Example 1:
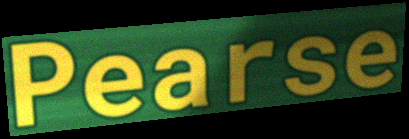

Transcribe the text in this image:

Pearse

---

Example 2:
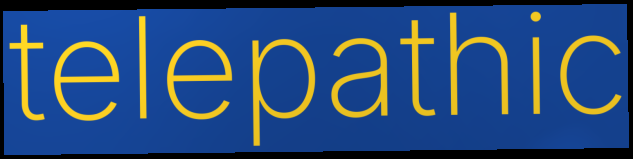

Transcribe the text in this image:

telepathic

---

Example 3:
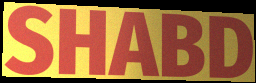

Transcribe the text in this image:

SHABD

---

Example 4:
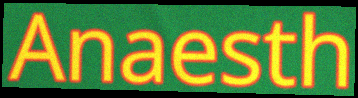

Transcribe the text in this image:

Anaesth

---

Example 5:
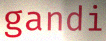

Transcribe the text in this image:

gandi